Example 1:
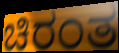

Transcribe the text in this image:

ಚಿರಂತ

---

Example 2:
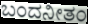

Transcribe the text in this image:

ಬಂದನೀತಂ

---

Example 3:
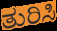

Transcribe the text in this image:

ತುರಿಸಿ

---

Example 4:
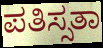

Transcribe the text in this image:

ಪತಿಸ್ಸತಾ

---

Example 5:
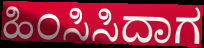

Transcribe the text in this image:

ಹಿಂಸಿಸಿದಾಗ